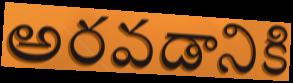
అరవడానికి